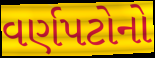
વર્ણપટોનો